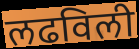
लढविली